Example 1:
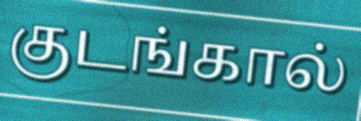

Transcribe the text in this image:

குடங்கால்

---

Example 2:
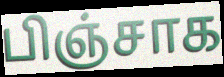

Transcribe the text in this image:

பிஞ்சாக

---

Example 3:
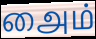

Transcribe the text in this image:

அைம்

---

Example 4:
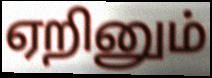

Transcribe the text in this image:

ஏறினும்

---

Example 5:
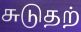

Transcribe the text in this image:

சுடுதற்